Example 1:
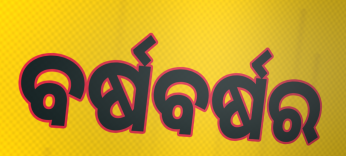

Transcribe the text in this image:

ବର୍ଷବର୍ଷର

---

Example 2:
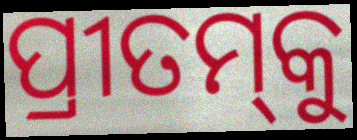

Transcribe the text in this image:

ପ୍ରୀତମ୍‌କୁ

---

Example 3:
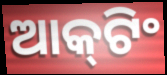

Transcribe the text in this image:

ଆକ୍‌ଟିଂ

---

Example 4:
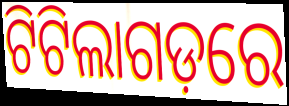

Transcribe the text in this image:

ଟିଟିଲାଗଡ଼ରେ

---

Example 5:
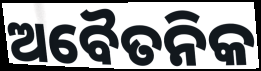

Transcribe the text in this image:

ଅବୈତନିକ